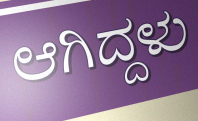
ಆಗಿದ್ದಳು